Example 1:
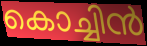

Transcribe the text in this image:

കൊച്ചിൻ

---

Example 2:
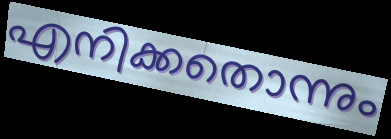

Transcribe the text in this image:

എനിക്കതൊന്നും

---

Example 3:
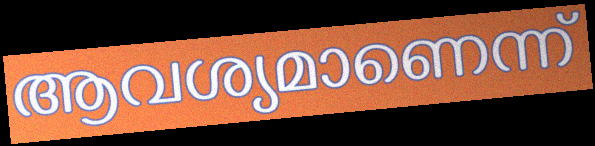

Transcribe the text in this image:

ആവശ്യമാണെന്ന്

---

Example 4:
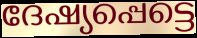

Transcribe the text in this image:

ദേഷ്യപ്പെട്ടെ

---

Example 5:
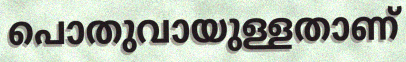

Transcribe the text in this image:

പൊതുവായുള്ളതാണ്